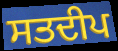
ਸਤਦੀਪ